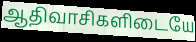
ஆதிவாசிகளிடையே